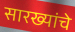
सारख्यांचे